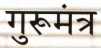
गुरूमंत्र